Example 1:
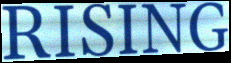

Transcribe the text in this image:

RISING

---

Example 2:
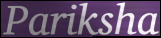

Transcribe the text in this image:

Pariksha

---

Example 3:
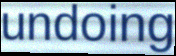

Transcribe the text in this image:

undoing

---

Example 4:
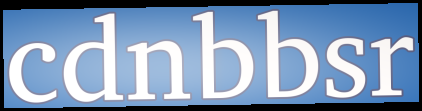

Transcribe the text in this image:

cdnbbsr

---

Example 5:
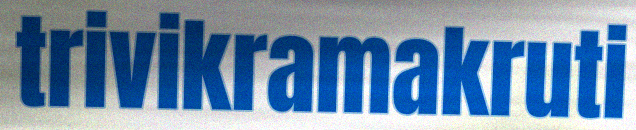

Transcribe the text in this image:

trivikramakruti